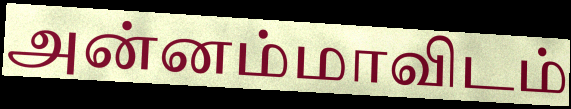
அன்னம்மாவிடம்